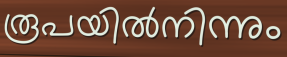
രൂപയിൽനിന്നും